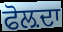
ਫੋਲ਼ਦਾ